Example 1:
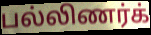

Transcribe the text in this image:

பல்லிணர்க்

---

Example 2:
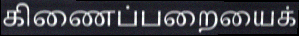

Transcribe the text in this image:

கிணைப்பறையைக்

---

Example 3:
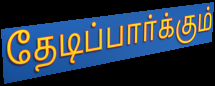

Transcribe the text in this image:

தேடிப்பார்க்கும்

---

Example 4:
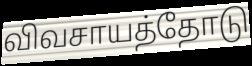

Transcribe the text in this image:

விவசாயத்தோடு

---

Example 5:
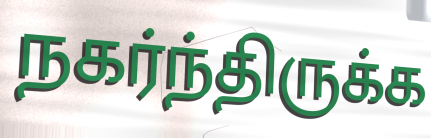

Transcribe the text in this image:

நகர்ந்திருக்க